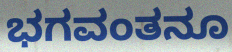
ಭಗವಂತನೂ